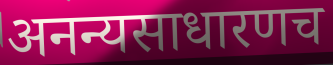
अनन्यसाधारणच